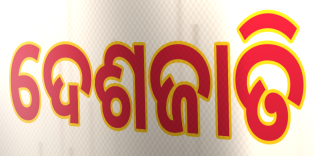
ଦେଶଜାତି